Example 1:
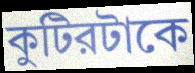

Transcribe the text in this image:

কুটিরটাকে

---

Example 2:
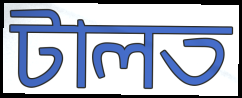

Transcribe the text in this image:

টালত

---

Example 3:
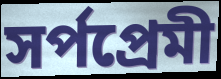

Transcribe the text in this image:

সর্পপ্রেমী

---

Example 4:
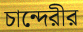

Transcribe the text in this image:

চান্দেরীর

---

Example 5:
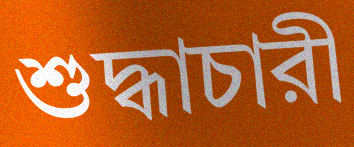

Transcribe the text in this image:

শুদ্ধাচারী